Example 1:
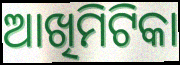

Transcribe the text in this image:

ଆଖିମିଟିକା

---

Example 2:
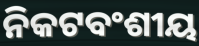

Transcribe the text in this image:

ନିକଟବଂଶୀୟ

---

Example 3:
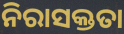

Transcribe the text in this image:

ନିରାସକ୍ତତା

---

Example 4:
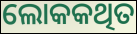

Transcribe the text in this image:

ଲୋକକଥିତ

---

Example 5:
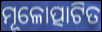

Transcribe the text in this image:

ମୂଳୋତ୍ପାଟିତ